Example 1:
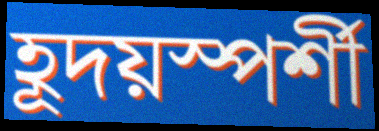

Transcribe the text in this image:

হূদয়স্পর্শী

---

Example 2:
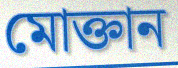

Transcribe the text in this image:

মোক্তান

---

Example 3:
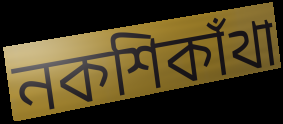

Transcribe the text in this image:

নকশিকাঁথা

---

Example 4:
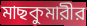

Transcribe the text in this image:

মাছকুমারীর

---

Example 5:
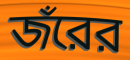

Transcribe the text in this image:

জঁরের